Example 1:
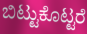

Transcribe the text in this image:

ಬಿಟ್ಟುಕೊಟ್ಟರೆ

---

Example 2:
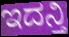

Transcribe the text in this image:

ಇದನ್ತಿ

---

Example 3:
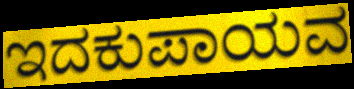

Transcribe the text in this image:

ಇದಕುಪಾಯವ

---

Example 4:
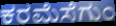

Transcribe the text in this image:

ಕರಮೆಸೆಗುಂ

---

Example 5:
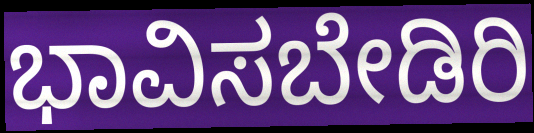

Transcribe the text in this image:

ಭಾವಿಸಬೇಡಿರಿ